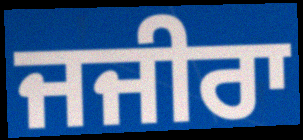
ਜਜੀਰਾ